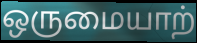
ஒருமையாற்